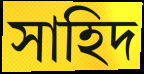
সাহিদ